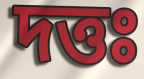
দত্তঃ